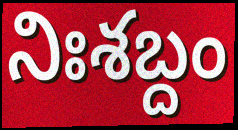
నిఃశబ్దం